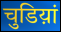
चुडिय़ां